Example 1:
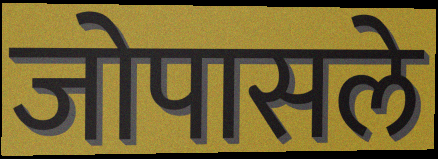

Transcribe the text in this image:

जोपासले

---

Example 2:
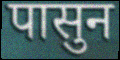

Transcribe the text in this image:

पासुन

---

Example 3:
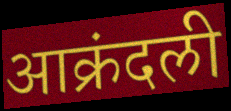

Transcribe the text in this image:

आक्रंदली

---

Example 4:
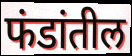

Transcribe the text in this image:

फंडांतील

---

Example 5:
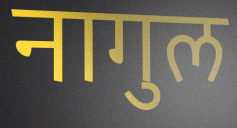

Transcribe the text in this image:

नागुल